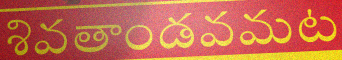
శివతాండవమట